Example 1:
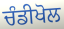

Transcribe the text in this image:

ਚੰਡੀਖੋਲ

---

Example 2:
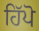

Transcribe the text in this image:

ਹਿੱਪੋ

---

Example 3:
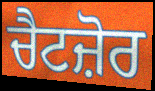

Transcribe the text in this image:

ਚੈਟਜ਼ੋਰ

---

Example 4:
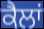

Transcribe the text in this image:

ਕੈਲਾਂ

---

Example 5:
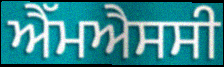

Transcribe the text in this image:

ਐੱਮਐਸਸੀ